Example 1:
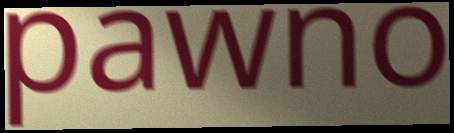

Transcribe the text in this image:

pawno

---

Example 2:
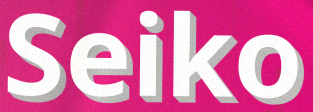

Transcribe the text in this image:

Seiko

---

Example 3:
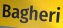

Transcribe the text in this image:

Bagheri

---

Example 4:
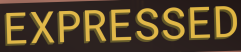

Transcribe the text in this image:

EXPRESSED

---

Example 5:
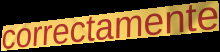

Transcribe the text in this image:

correctamente